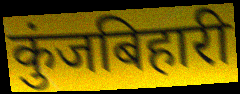
कुंजबिहारी